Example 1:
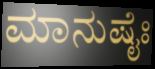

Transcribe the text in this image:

ಮಾನುಷೈಃ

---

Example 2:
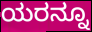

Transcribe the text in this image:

ಯರನ್ನೂ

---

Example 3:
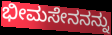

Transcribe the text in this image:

ಭೀಮಸೇನನನ್ನು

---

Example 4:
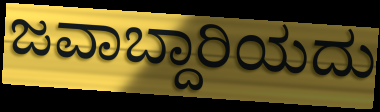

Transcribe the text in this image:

ಜವಾಬ್ದಾರಿಯದು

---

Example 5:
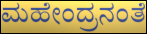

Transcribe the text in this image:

ಮಹೇಂದ್ರನಂತೆ